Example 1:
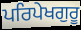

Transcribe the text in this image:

ਪਰਿਪੇਖਗੁਰੂ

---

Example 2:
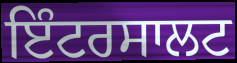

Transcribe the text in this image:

ਇੰਟਰਸਾਲਟ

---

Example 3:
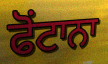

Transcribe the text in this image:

ਫੋਂਟਾਨਾ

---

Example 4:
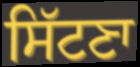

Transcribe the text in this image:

ਸਿੱਟਣਾ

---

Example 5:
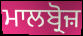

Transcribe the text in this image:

ਮਾਲਬ੍ਰੋਜ਼